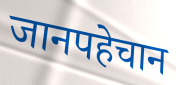
जानपहेचान